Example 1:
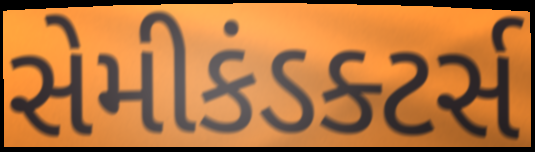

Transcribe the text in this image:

સેમીકંડક્ટર્સ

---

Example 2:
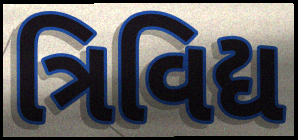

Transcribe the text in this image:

ત્રિવિદ્ય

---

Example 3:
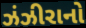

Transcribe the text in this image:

ઝંઝીરાનો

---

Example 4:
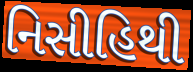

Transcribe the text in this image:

નિસીહિથી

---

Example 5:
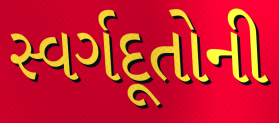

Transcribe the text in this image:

સ્વર્ગદૂતોની